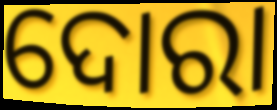
ଦୋରା